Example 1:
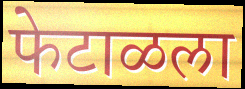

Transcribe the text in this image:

फेटाळला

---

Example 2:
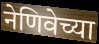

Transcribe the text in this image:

नेणिवेच्या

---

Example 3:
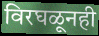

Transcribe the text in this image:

विरघळूनही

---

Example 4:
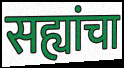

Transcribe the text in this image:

सह्यांचा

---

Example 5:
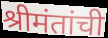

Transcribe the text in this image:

श्रीमंतांची